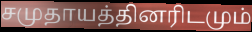
சமுதாயத்தினரிடமும்